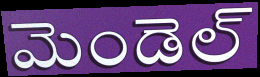
మెండెల్